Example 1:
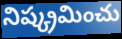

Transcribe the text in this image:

నిష్క్రమించు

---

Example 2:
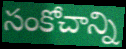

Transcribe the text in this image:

సంకోచాన్ని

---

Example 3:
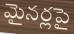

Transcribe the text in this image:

మైనర్లపై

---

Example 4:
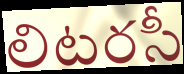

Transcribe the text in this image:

లిటరసీ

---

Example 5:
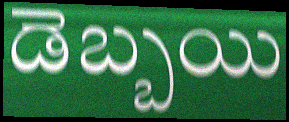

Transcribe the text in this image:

డెబ్బయి